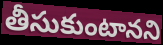
తీసుకుంటానని